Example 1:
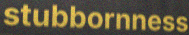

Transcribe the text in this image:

stubbornness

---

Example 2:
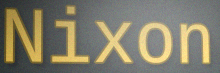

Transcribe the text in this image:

Nixon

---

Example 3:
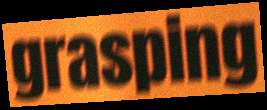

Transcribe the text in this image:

grasping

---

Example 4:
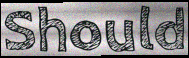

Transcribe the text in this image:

Should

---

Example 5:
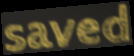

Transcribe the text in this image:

saved